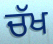
ਚੱਖ